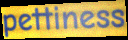
pettiness